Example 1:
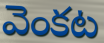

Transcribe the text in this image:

వెంకట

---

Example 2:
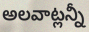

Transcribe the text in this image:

అలవాట్లన్నీ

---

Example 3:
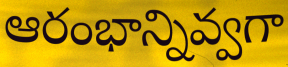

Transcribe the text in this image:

ఆరంభాన్నివ్వగా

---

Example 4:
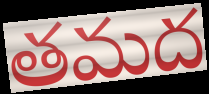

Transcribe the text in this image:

తమద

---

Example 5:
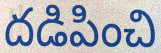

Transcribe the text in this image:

దడిపించి